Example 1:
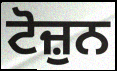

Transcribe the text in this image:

ਟੋਜ਼ੁਨ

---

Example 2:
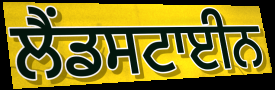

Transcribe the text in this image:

ਲੈਂਡਸਟਾਈਨ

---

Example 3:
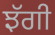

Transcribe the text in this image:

ਝੱਗੀ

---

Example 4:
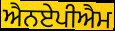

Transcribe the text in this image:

ਐਨਏਪੀਐਮ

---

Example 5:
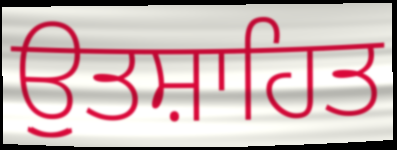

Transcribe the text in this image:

ਉੁਤਸ਼ਾਹਿਤ